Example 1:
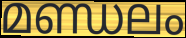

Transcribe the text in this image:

മണ്ഡലം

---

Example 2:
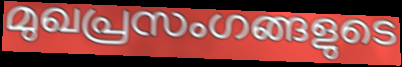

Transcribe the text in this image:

മുഖപ്രസംഗങ്ങളുടെ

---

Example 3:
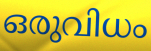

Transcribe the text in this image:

ഒരുവിധം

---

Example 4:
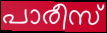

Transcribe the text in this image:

പാരീസ്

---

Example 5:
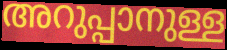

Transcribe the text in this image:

അറുപ്പാനുള്ള